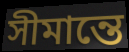
সীমান্তে